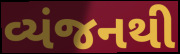
વ્યંજનથી